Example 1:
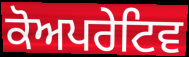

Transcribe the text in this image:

ਕੋਅਪਰੇਟਿਵ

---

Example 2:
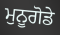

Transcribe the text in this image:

ਮੁਨੂਗੋਡੇ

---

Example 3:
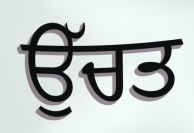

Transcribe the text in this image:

ਉੱਚਤ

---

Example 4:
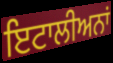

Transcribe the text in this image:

ਇਟਾਲੀਅਨਾਂ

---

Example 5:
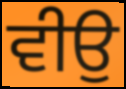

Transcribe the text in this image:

ਵੀਉ